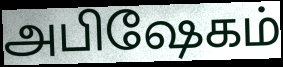
அபிஷேகம்